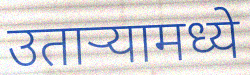
उतार्‍यामध्ये